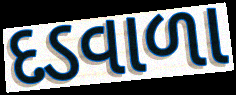
દડવાળા